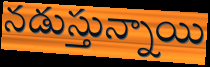
నడుస్తున్నాయి